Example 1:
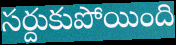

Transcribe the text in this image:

సర్దుకుపోయింది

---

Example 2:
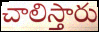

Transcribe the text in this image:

చాలిస్తారు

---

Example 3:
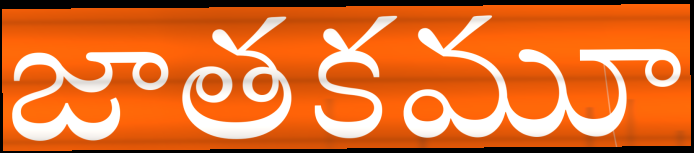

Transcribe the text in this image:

జాతకమూ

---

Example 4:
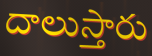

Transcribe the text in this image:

దాలుస్తారు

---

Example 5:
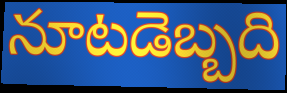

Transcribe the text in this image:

నూటడెబ్బది